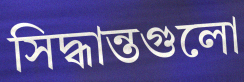
সিদ্ধান্তগুলো